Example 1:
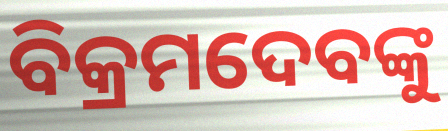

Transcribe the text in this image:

ବିକ୍ରମଦେବଙ୍କୁ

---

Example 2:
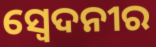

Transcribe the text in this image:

ସ୍ୱେଦନୀର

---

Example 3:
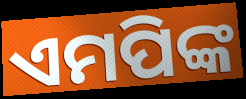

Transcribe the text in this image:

ଏମପିଙ୍କ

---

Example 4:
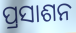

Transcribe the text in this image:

ପ୍ରସାଶନ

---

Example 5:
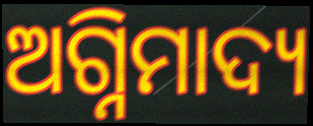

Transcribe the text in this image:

ଅଗ୍ନିମାଦ୍ୟ